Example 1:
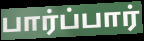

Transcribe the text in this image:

பார்ப்பார்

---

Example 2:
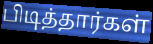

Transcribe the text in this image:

பிடித்தார்கள்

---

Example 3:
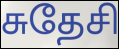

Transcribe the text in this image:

சுதேசி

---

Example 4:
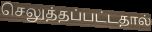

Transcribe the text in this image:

செலுத்தப்பட்டதால்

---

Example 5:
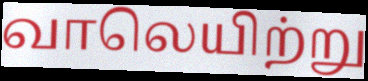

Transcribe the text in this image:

வாலெயிற்று